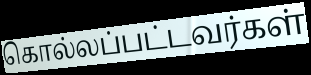
கொல்லப்பட்டவர்கள்